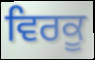
ਵਿਰਕੂ